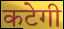
कटेगी